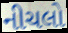
નીચલો